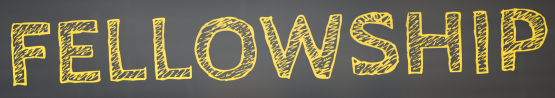
FELLOWSHIP